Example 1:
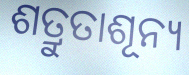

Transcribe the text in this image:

ଶତ୍ରୁତାଶୂନ୍ୟ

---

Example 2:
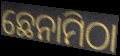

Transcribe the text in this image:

ଛେନାମିଠା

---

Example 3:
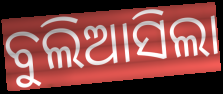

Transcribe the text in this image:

ବୁଲିଆସିଲା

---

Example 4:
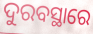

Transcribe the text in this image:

ଦୁରବସ୍ଥାରେ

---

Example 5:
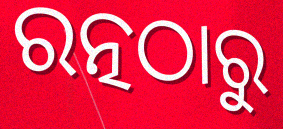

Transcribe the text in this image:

ରତ୍ନଠାରୁ